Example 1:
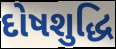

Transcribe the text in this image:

દોષશુદ્ધિ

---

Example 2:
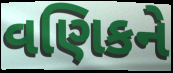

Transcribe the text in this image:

વણિકને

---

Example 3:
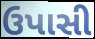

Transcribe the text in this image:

ઉપાસી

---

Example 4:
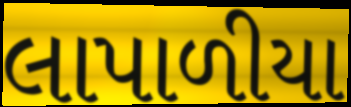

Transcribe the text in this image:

લાપાળીયા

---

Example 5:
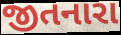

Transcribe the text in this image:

જીતનારા